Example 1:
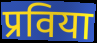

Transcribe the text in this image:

प्रविया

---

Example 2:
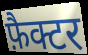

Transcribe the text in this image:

फ़ैक्टर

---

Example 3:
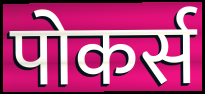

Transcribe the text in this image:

पोकर्स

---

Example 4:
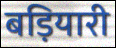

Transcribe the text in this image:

बड़ियारी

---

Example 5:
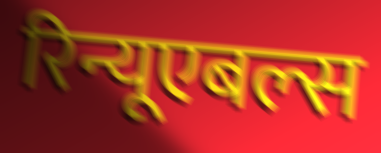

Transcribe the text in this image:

रिन्यूएबल्स